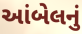
આંબેલનું